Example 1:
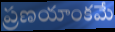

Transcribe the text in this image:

ప్రణయాంకమే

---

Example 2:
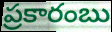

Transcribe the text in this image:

ప్రకారంబు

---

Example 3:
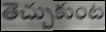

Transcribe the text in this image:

తెచ్చుకుంట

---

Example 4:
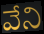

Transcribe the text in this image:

వేని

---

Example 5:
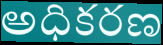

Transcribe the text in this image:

అధికరణ